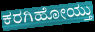
ಕರಗಿಹೋಯ್ತು